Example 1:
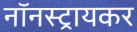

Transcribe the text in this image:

नॉनस्ट्रायकर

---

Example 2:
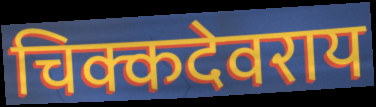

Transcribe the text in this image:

चिक्कदेवराय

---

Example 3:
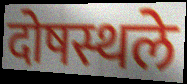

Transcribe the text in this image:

दोषस्थले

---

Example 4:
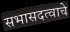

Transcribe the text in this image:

सभासदत्वाचे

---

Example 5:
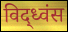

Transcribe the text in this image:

विद्ध्वंस